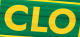
CLO